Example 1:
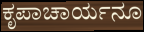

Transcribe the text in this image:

ಕೃಪಾಚಾರ್ಯನೂ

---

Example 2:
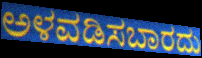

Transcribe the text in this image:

ಅಳವಡಿಸಬಾರದು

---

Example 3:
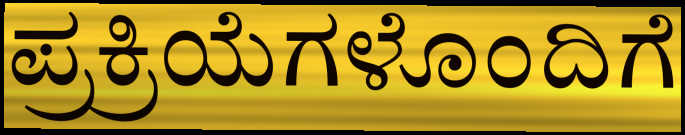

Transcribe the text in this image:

ಪ್ರಕ್ರಿಯೆಗಳೊಂದಿಗೆ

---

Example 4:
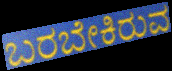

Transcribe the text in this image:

ಬರಬೇಕಿರುವ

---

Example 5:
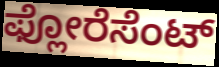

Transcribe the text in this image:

ಫ್ಲೋರೆಸೆಂಟ್